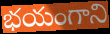
భయంగాని